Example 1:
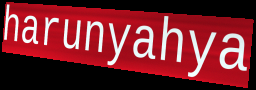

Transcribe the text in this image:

harunyahya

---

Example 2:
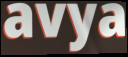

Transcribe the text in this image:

avya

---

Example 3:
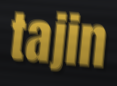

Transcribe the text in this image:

tajin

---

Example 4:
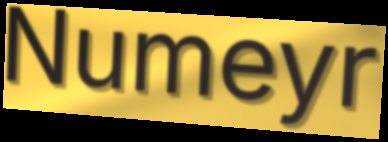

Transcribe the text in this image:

Numeyr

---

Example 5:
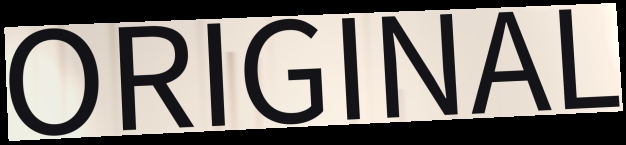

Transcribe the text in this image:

ORIGINAL